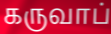
கருவாப்